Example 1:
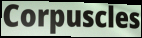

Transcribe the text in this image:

Corpuscles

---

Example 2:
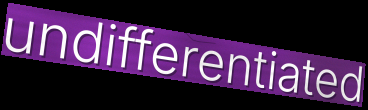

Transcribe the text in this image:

undifferentiated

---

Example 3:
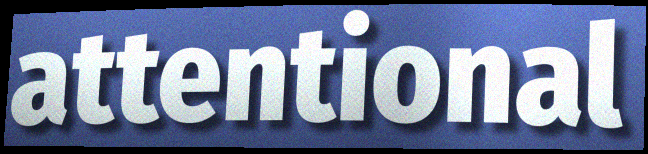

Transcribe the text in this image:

attentional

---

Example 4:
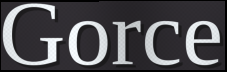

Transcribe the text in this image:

Gorce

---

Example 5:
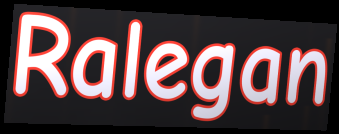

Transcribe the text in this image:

Ralegan